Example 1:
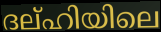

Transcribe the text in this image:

ദല്ഹിയിലെ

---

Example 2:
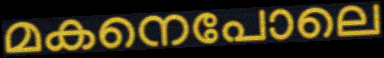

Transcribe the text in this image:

മകനെപോലെ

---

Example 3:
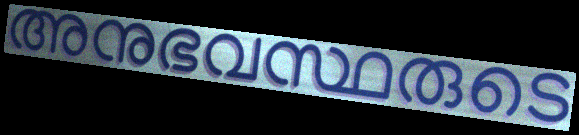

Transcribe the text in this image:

അനുഭവസ്ഥരുടെ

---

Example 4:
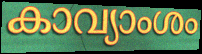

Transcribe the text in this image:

കാവ്യാംശം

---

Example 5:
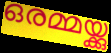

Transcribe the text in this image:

ഒരമ്മയ്ക്കു